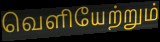
வெளியேற்றும்